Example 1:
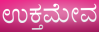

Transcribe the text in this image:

ಉಕ್ತಮೇವ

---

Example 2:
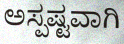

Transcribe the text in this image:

ಅಸ್ಪಷ್ಟವಾಗಿ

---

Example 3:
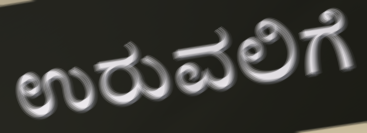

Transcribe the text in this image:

ಉರುವಲಿಗೆ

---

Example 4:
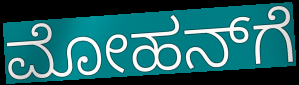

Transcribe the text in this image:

ಮೋಹನ್‌ಗೆ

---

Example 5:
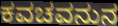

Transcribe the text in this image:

ಕವಚವನುನ